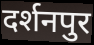
दर्शनपुर